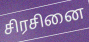
சிரசினை